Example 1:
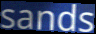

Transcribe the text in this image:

sands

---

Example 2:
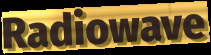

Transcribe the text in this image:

Radiowave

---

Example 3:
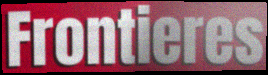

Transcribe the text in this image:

Frontieres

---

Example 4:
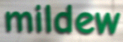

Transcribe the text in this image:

mildew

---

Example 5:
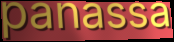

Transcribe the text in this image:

panassa